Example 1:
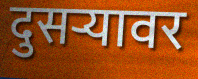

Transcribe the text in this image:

दुसऱ्यावर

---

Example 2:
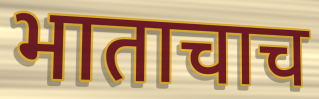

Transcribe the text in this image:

भाताचाच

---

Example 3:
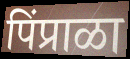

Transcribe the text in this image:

पिंप्राळा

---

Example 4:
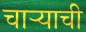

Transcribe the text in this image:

चाऱ्याची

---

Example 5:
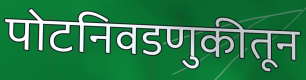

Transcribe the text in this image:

पोटनिवडणुकीतून